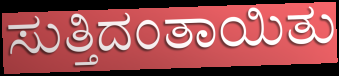
ಸುತ್ತಿದಂತಾಯಿತು